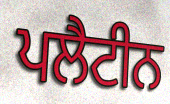
ਪਲੈਟੀਨ